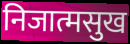
निजात्मसुख